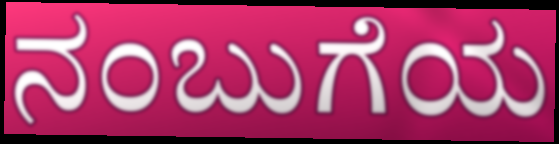
ನಂಬುಗೆಯ